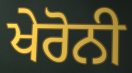
ਖੇਰੋਨੀ